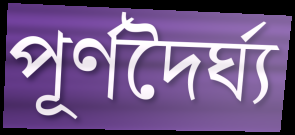
পূর্ণদৈর্ঘ্য